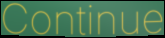
Continue